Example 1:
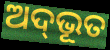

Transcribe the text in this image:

ଅଦ୍‌ଭୂତ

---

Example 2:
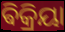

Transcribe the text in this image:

ଵିକ୍ରିୟା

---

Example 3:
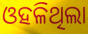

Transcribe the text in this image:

ଓହଳିଥିଲା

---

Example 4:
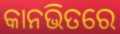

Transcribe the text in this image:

କାନଭିତରେ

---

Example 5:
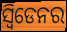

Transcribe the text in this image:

ସ୍ୱିଡେନର